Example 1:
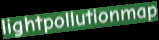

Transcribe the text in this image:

lightpollutionmap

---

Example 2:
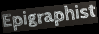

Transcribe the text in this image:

Epigraphist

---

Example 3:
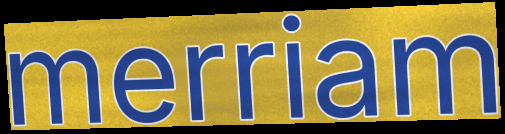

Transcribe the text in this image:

merriam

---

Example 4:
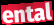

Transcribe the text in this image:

ental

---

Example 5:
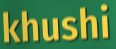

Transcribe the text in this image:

khushi